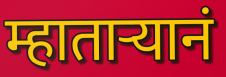
म्हाताऱ्यानं